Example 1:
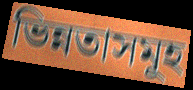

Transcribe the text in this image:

ভিন্নতাসমূহ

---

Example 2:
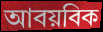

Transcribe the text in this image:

আবয়বিক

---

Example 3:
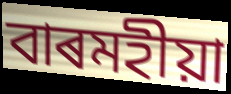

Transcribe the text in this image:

বাৰমহীয়া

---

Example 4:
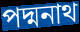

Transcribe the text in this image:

পদ্মনাথ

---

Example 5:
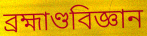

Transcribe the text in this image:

ব্ৰহ্মাণ্ডবিজ্ঞান